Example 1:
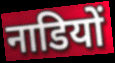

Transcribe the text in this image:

नाडियों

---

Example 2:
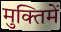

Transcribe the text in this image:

मुक्तिमें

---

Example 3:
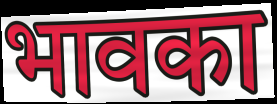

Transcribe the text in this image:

भावका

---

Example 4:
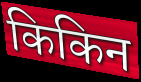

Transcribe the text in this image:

किकिन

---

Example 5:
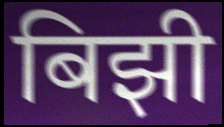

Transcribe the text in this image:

बिझी